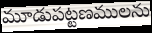
మూడుపట్టణములను